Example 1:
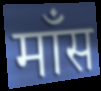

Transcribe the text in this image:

मॉंस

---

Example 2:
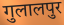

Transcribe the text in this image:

गुलालपुर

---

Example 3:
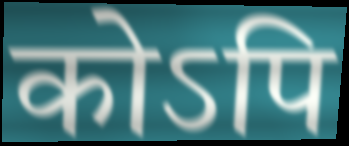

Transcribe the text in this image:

कोऽपि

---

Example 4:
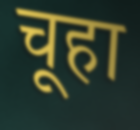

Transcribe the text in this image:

चूहा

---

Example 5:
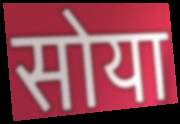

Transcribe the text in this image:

सोया